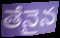
తేనైన